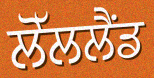
ਲੋੱਲਲੈਂਡ